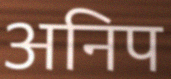
अनिप